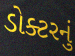
ડોક્ટરનું